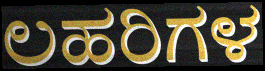
ಲಹರಿಗಳ